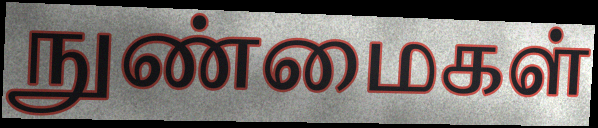
நுண்மைகள்